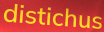
distichus